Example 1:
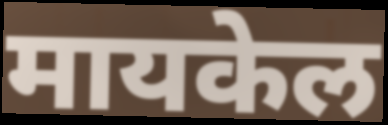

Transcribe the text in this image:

मायकेल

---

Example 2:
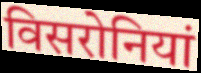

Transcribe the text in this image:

विसरोनियां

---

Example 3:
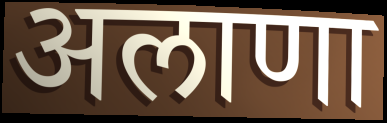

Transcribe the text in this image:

अलाणा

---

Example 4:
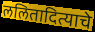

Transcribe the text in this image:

ललितादित्याचे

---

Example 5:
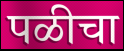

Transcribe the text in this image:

पळीचा